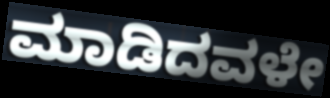
ಮಾಡಿದವಳೇ